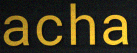
acha